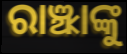
ରାଞ୍ଝାଙ୍କୁ